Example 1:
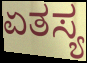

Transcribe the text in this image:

ಏತಸ್ಯ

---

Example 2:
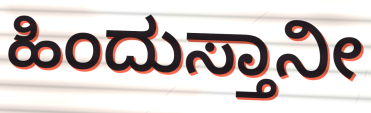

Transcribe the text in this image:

ಹಿಂದುಸ್ತಾನೀ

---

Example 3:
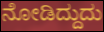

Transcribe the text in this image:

ನೋಡಿದ್ದುದು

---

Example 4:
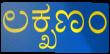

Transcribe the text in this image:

ಲಕ್ಖಣಂ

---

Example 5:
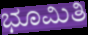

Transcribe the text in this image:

ಭೂಮಿತಿ